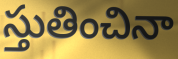
స్తుతించినా